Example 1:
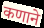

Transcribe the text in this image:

कणाने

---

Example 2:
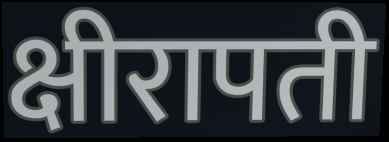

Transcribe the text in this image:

क्षीरापती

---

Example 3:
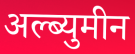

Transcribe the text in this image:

अल्ब्युमीन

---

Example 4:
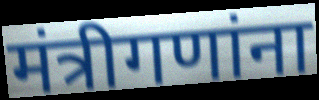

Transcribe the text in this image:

मंत्रीगणांना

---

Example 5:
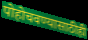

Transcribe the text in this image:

पोहोचवण्यासाठीही